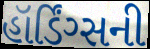
હૉર્ડિંગ્સની